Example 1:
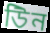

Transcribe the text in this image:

উিন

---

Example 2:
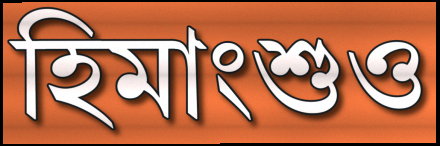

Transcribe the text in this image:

হিমাংশুও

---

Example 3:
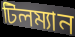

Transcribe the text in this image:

টিলম্যান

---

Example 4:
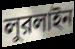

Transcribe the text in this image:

লুরলাইন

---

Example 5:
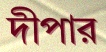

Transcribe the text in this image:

দীপার